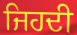
ਜਿਹਦੀ